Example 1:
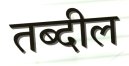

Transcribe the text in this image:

तब्‍दील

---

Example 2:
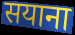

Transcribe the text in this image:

सयाना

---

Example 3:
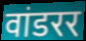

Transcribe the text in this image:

वांडरर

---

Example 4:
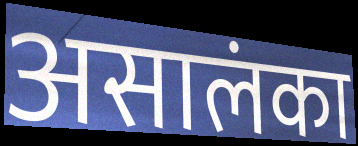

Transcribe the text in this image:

असालंका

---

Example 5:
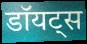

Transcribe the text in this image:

डॉयट्स